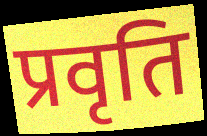
प्रवृति